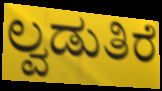
ಲ್ವಡುತಿರೆ